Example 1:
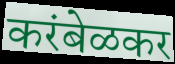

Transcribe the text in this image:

करंबेळकर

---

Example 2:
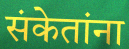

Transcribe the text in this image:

संकेतांना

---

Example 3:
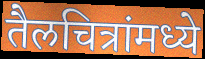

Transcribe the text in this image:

तैलचित्रांमध्ये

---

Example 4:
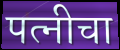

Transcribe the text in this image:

पत्नीचा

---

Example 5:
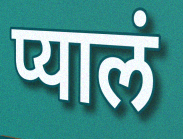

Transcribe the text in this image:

प्यालं